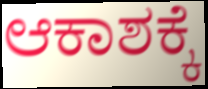
ಆಕಾಶಕ್ಕೆ